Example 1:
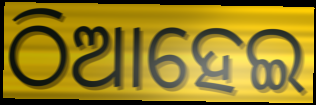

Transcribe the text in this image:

ଠିଆହେଇ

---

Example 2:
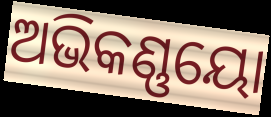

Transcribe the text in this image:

ଅଭିକଣ୍ଣୟୋ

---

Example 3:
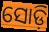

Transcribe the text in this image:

ସୋଡ଼ି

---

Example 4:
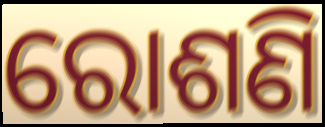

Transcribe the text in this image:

ରୋଶଣି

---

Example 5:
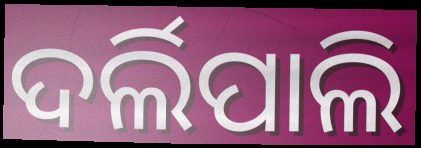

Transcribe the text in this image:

ଦର୍ଲିପାଲି